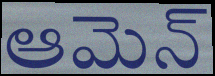
ఆమెన్